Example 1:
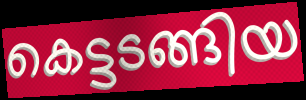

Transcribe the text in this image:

കെട്ടടങ്ങിയ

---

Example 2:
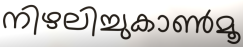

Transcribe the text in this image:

നിഴലിച്ചുകാൺമൂ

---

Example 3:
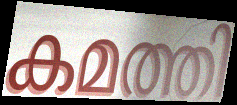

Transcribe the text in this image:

കമത്തി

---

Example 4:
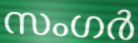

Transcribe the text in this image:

സംഗർ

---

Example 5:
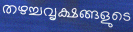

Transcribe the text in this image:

തഴച്ചവൃക്ഷങ്ങളുടെ